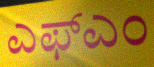
ಎಫ್ಎಂ